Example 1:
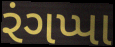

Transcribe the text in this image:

રંગપ્પા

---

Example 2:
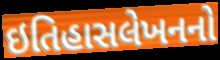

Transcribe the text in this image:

ઇતિહાસલેખનનો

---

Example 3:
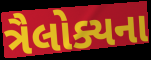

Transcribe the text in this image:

ત્રૈલોક્યના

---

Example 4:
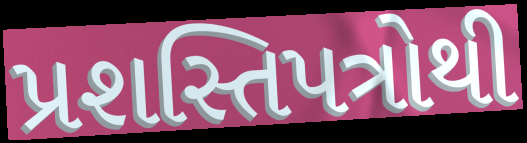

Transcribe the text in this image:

પ્રશસ્તિપત્રોથી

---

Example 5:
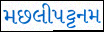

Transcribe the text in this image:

મછલીપટ્ટનમ